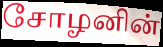
சோழனின்